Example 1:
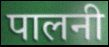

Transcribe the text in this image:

पालनी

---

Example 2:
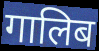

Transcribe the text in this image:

गालिब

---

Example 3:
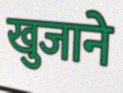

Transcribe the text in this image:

खुजाने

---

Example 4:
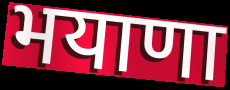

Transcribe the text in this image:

भयाणा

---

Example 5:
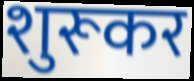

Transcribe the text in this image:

शुरूकर